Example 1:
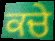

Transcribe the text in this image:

ਕਚੇ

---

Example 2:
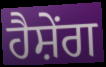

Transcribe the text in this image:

ਹੈਸ਼ੇਂਗ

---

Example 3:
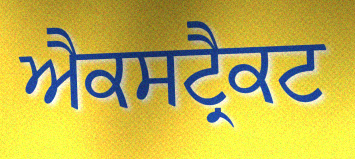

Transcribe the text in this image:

ਐਕਸਟ੍ਰੈਕਟ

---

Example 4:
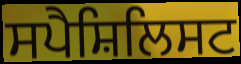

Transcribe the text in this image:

ਸਪੈਸ਼ਿਲਿਸਟ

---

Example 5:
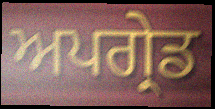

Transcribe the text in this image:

ਅਪਗ੍ਰੇਡ